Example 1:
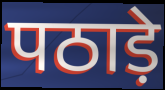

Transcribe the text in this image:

पठाड़े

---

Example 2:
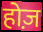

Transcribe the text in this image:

होज़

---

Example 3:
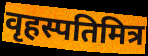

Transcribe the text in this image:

वृहस्पतिमित्र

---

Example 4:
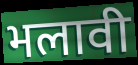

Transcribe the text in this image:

भलावी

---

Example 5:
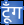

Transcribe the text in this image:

टूँग